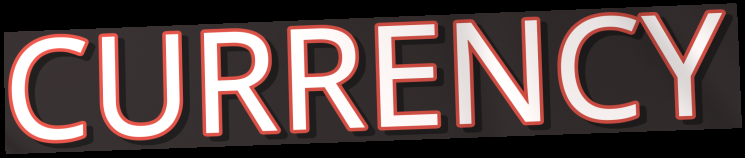
CURRENCY